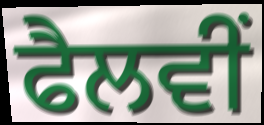
ਫੈਲਵੀਂ